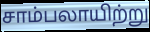
சாம்பலாயிற்று